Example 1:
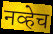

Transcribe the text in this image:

नव्हेच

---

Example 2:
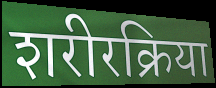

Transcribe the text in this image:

शरीरक्रिया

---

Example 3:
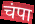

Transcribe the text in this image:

चंपा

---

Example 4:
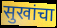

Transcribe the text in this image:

सुखांचा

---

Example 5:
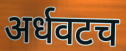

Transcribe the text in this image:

अर्धवटच